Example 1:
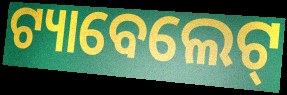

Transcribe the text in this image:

ଟ୍ୟାବେଲେଟ୍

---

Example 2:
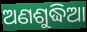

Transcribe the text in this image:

ଅଣଶୁଦ୍ଧିଆ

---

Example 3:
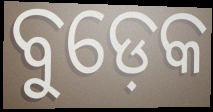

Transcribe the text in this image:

ବୁଡ଼େକ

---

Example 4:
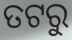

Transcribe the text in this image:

ତଟରୁ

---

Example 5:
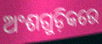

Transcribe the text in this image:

ଅଂଶଗୁଡ଼ିକରେ